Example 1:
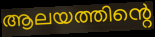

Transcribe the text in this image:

ആലയത്തിന്റെ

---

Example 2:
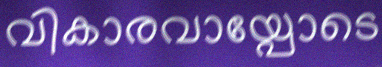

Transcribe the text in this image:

വികാരവായ്പോടെ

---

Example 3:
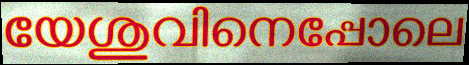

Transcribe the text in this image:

യേശുവിനെപ്പോലെ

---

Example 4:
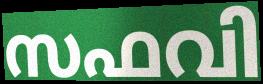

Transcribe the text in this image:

സഫവി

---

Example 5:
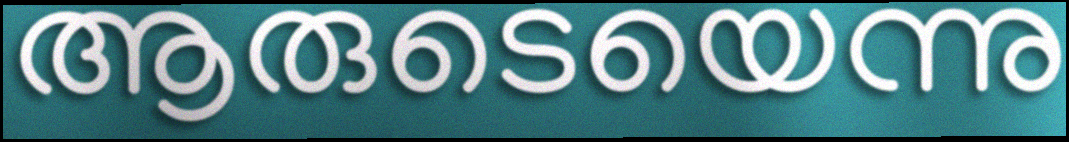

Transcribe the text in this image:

ആരുടെയെന്നു